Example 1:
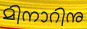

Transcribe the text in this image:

മിനാറിനു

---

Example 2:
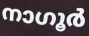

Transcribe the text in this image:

നാഗൂർ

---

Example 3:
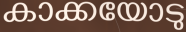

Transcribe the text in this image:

കാക്കയോടു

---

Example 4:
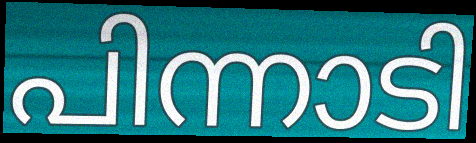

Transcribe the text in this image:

പിന്നാടി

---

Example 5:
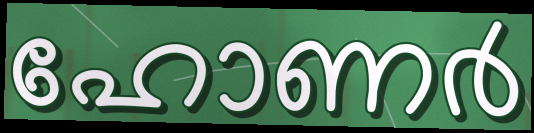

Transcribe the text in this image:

ഹോണർ